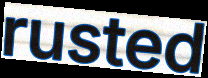
rusted